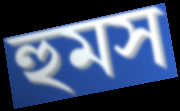
হুমস